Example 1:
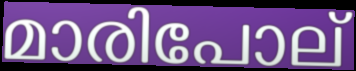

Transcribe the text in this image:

മാരിപോല്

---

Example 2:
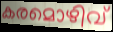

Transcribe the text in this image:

കരമൊഴിവ്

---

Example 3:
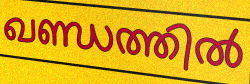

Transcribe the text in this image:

ഖണ്ഡത്തിൽ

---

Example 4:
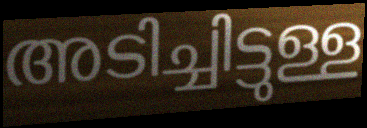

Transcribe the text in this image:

അടിച്ചിട്ടുള്ള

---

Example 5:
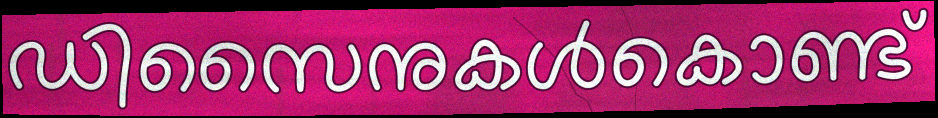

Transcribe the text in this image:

ഡിസൈനുകൾകൊണ്ട്